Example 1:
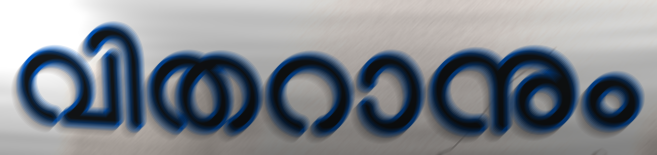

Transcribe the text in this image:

വിതറാനും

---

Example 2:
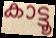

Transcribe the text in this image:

കാട്ടൂ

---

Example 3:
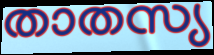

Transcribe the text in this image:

താതസ്യ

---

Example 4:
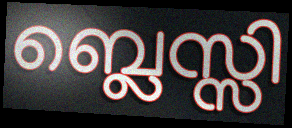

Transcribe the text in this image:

ബ്ലെസ്സി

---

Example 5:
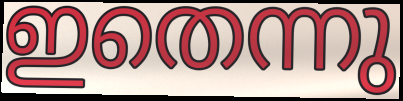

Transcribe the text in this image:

ഇതെന്നു